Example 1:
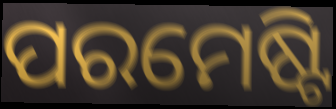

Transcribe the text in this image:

ପରମେଷ୍ଟି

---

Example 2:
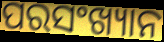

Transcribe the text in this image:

ପରସଂଖ୍ୟାନ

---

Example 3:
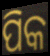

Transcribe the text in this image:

ପିକ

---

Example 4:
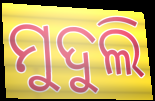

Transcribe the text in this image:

ମୁଦୁଲି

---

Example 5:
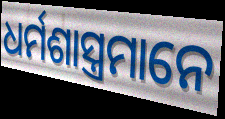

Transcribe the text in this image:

ଧର୍ମଶାସ୍ତ୍ରମାନେ